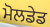
ਮੋਲਡੇਡ